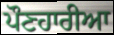
ਪੌਣਹਾਰੀਆ